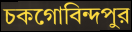
চকগোবিন্দপুর